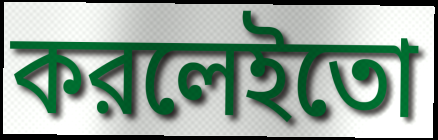
করলেইতো